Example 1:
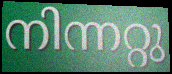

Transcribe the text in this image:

നിന്നറ്റു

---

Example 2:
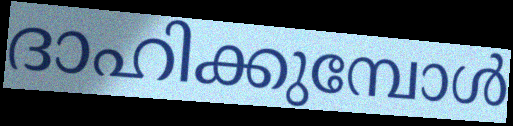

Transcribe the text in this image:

ദാഹിക്കുമ്പോൾ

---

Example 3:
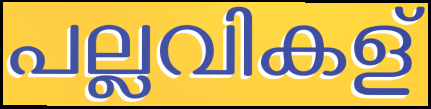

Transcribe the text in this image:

പല്ലവികള്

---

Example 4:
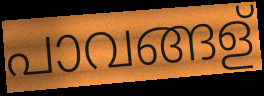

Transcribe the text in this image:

പാവങ്ങള്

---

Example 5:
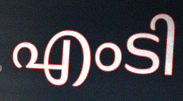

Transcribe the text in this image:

എംടി